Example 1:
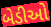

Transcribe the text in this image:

બેડીઓ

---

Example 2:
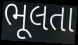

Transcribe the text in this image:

ભૂલતા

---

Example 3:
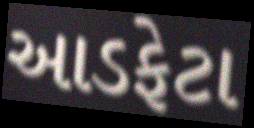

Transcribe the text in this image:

આડફેટા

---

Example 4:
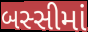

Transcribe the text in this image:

બસ્સીમાં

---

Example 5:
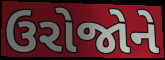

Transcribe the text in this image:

ઉરોજોને